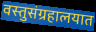
वस्तुसंग्रहालयात